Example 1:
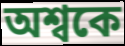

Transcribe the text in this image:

অশ্বকে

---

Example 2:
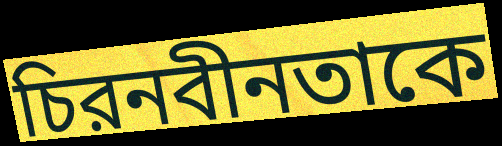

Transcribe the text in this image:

চিরনবীনতাকে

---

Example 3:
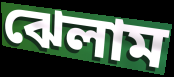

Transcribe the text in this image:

ঝেলাম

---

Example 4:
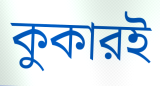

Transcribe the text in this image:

কুকারই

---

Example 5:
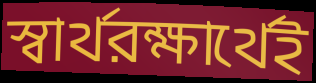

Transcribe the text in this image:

স্বার্থরক্ষার্থেই